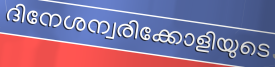
ദിനേശന്വരിക്കോളിയുടെ